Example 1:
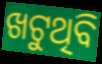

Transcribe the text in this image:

ଖଟୁଥିବି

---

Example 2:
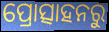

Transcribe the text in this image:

ପ୍ରୋତ୍ସାହନରୁ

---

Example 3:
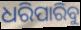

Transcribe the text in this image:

ଧରିପାରିବୁ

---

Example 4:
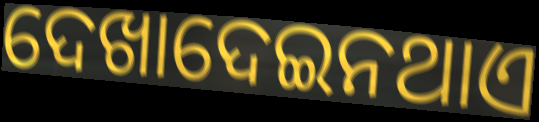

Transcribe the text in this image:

ଦେଖାଦେଇନଥାଏ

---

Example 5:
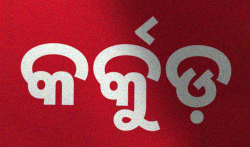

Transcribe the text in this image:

କର୍କୁଡ଼